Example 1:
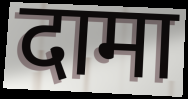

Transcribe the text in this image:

दामा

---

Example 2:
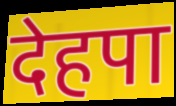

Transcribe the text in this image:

देहपा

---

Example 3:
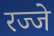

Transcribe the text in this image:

रज्जे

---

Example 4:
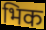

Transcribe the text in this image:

भिक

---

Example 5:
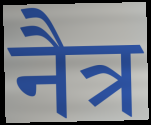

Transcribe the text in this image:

नैत्र